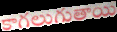
కాగలుగుతాయి